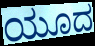
ಯೂದ